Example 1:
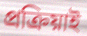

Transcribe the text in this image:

প্ৰক্ৰিয়াই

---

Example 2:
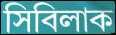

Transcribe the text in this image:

সিবিলাক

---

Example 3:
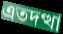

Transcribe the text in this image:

এতদত্থা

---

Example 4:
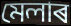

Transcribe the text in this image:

মেলাৰ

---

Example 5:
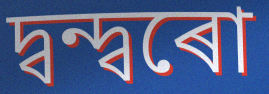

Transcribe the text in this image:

দ্বন্দ্বৰো